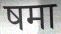
षमा